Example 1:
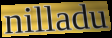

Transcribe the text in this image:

nilladu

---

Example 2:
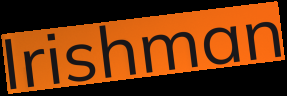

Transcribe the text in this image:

Irishman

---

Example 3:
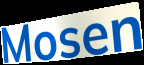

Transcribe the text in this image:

Mosen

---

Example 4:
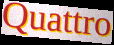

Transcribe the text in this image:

Quattro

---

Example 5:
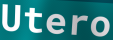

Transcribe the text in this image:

Utero